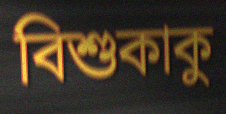
বিশুকাকু